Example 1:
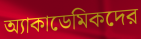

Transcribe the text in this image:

অ্যাকাডেমিকদের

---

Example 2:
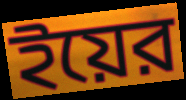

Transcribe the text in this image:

ইয়ের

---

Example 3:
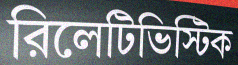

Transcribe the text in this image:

রিলেটিভিস্টিক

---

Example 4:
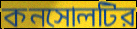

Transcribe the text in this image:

কনসোলটির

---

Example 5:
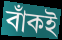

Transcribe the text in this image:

বাঁকই